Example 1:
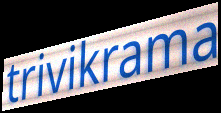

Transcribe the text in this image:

trivikrama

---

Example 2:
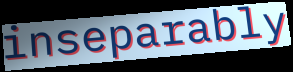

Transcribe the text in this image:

inseparably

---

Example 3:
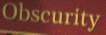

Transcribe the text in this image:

Obscurity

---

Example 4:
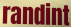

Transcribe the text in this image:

randint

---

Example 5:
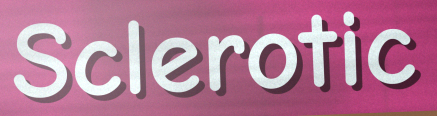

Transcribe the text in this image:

Sclerotic